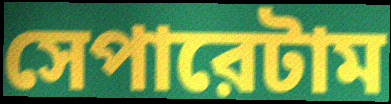
সেপারেটাম